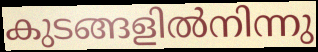
കുടങ്ങളിൽനിന്നു